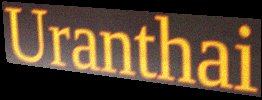
Uranthai